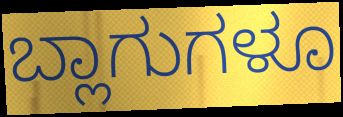
ಬ್ಲಾಗುಗಳೂ